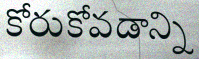
కోరుకోవడాన్ని